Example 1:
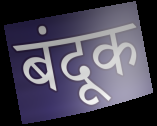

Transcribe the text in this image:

बंदूक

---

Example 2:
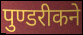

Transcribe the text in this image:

पुण्डरीकने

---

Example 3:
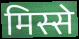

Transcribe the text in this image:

मिस्से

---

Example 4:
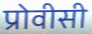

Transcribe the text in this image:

प्रोवीसी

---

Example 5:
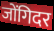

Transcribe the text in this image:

जोंगिदर